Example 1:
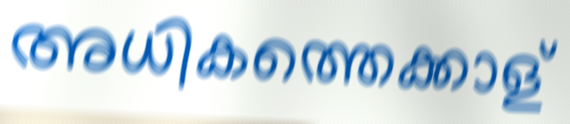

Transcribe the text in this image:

അധികത്തെക്കാള്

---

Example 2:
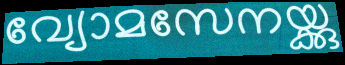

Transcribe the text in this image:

വ്യോമസേനയ്ക്കു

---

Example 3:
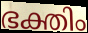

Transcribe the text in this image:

ഭക്തിം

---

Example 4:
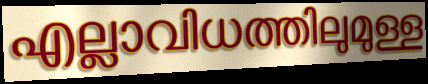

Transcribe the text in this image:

എല്ലാവിധത്തിലുമുള്ള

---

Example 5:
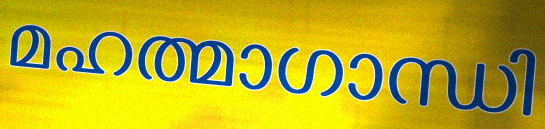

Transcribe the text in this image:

മഹത്മാഗാന്ധി